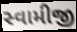
સ્વામીજી